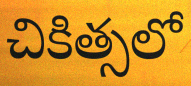
చికిత్సలో